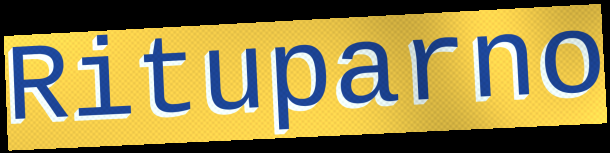
Rituparno